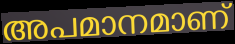
അപമാനമാണ്